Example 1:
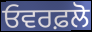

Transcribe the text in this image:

ਓਵਰਫ਼ਲੋ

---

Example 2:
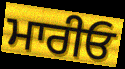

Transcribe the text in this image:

ਮਾਰੀਓ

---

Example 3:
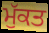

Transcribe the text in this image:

ਮੁੱਕਤ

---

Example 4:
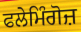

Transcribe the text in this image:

ਫਲੇਮਿੰਗੋਜ਼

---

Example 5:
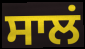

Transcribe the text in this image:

ਸਾਲਂ